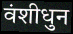
वंशीधुन